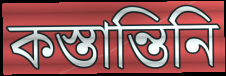
কস্তান্তিনি